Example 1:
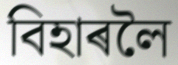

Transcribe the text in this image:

বিহাৰলৈ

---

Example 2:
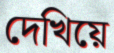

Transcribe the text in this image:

দেখিয়ে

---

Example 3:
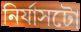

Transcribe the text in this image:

নিৰ্যাসটো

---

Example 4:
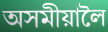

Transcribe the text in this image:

অসমীয়ালৈ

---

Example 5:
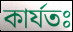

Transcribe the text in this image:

কাৰ্যতঃ